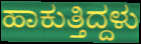
ಹಾಕುತ್ತಿದ್ದಳು